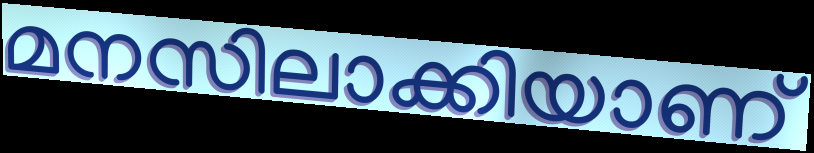
മനസിലാക്കിയാണ്